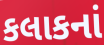
કલાકનાં